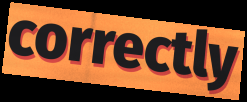
correctly